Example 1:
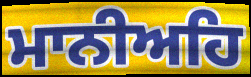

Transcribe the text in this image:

ਮਾਨੀਅਹਿ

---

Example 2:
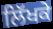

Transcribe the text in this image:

ਲਿੱਖਕੇ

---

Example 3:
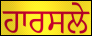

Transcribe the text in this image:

ਹਾਰਸਲੇ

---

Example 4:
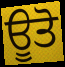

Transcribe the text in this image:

ਊਤੋ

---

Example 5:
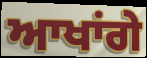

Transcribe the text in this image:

ਆਖਾਂਗੇ